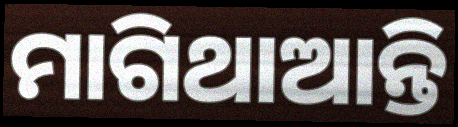
ମାଗିଥାଆନ୍ତି